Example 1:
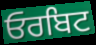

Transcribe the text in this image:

ਓਰਬਿਟ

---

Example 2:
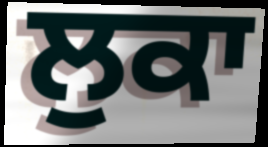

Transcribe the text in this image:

ਲੁਕਾ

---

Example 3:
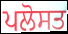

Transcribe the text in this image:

ਪਲੋਸਤ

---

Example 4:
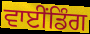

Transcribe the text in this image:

ਵਾਈਂਡਿੰਗ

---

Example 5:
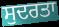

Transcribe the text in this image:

ਸੁਦਰਤਾ